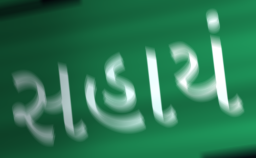
સહાયં